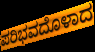
ಪರಿಭವದೊಳಾದ